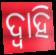
ଦ୍ଵାହି